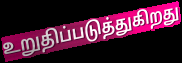
உறுதிப்படுத்துகிறது